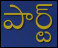
పార్ట్